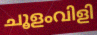
ചൂളംവിളി